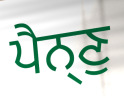
ਪੈਨ੍ਣੁ